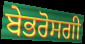
ਬੇਭਰੋਸਗੀ